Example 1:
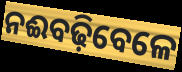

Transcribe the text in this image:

ନଈବଢ଼ିବେଳେ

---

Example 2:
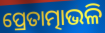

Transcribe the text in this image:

ପ୍ରେତାତ୍ମାଭଳି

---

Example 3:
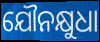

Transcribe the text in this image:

ଯୌନକ୍ଷୁଧା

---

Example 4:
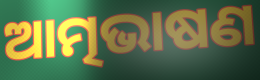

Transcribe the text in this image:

ଆତ୍ମଭାଷଣ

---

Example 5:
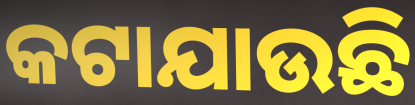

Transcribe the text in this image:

କଟାଯାଉଛି